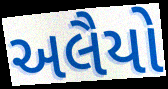
અલૈયો